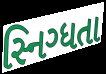
સ્નિગ્ધતા